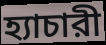
হ্যাচারী